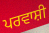
ਪਰਵਾਸ਼ੀ